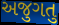
અજુગતુ